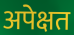
अपेक्षत